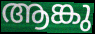
ആങ്കു